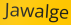
Jawalge